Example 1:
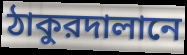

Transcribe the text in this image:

ঠাকুরদালানে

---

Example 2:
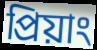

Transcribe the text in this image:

প্রিয়াং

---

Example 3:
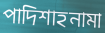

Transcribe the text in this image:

পাদিশাহনামা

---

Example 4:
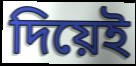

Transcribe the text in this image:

দিয়েই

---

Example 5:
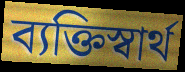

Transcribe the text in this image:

ব্যক্তিস্বার্থ